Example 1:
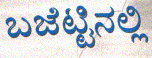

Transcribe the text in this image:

ಬಜೆಟ್ಟಿನಲ್ಲಿ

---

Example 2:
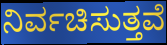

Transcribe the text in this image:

ನಿರ್ವಚಿಸುತ್ತವೆ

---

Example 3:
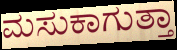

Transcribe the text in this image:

ಮಸುಕಾಗುತ್ತಾ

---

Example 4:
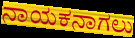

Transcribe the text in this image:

ನಾಯಕನಾಗಲು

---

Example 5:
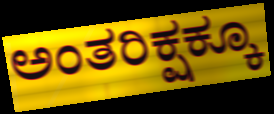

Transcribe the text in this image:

ಅಂತರಿಕ್ಷಕ್ಕೂ